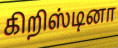
கிறிஸ்டினா